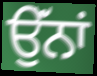
ਉਂੱਨਾਂ